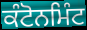
ਕੰਟੋਨਮਿੰਟ